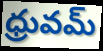
ధ్రువమ్